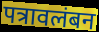
पत्रावलंबन